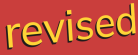
revised